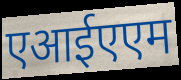
एआईएएम